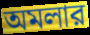
অমলার